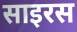
साइरस